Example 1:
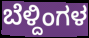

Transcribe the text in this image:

ಬೆಳ್ದಿಂಗಳ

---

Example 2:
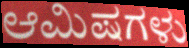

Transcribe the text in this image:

ಆಮಿಷಗಳು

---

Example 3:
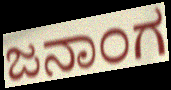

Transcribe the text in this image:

ಜನಾಂಗ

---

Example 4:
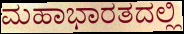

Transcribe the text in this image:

ಮಹಾಭಾರತದಲ್ಲಿ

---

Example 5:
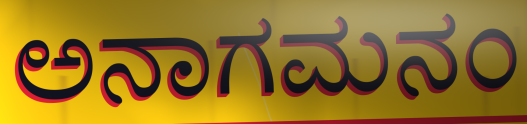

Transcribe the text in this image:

ಅನಾಗಮನಂ